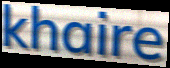
khaire